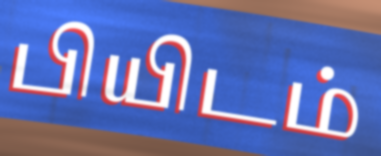
பியிடம்